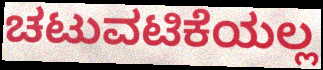
ಚಟುವಟಿಕೆಯಲ್ಲ